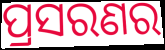
ପ୍ରସରଣର